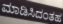
ಮಾಡಿಸಿದಂತಹ